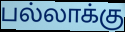
பல்லாக்கு